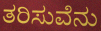
ತರಿಸುವೆನು